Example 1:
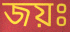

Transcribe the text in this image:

জয়ঃ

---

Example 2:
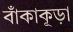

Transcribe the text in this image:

বাঁকাকূড়া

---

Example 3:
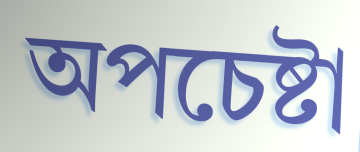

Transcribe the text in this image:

অপচেষ্টা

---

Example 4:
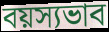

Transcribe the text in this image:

বয়স্যভাব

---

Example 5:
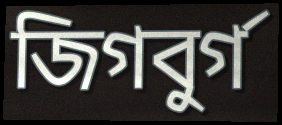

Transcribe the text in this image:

জিগবুর্গ